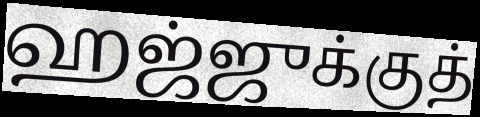
ஹஜ்ஜுக்குத்